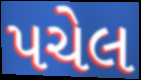
પચેલ